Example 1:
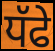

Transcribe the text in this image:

ਧੱਫੇ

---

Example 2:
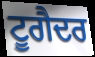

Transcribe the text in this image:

ਟੂਗੈਦਰ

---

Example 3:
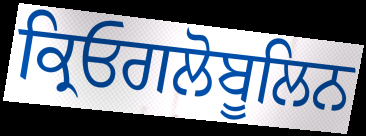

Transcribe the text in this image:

ਕ੍ਰਿਓਗਲੋਬੂਲਿਨ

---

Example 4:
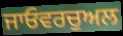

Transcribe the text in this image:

ਜਾਓਵਰਚੁਅਲ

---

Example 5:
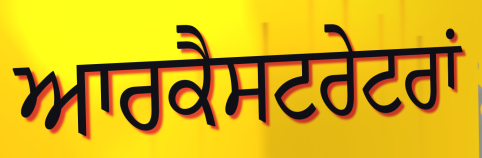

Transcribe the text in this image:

ਆਰਕੈਸਟਰੇਟਰਾਂ